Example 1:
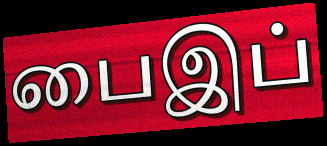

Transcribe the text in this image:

பைஇப்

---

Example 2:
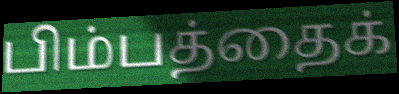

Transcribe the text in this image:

பிம்பத்தைக்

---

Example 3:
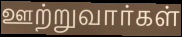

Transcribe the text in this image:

ஊற்றுவார்கள்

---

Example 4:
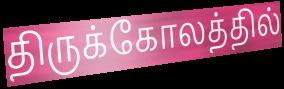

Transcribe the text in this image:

திருக்கோலத்தில்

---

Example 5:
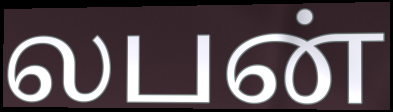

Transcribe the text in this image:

லபன்